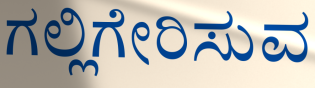
ಗಲ್ಲಿಗೇರಿಸುವ